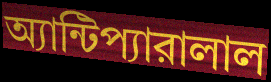
অ্যান্টিপ্যারালাল